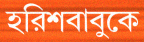
হরিশবাবুকে